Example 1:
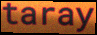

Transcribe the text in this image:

taray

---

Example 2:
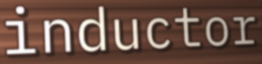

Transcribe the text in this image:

inductor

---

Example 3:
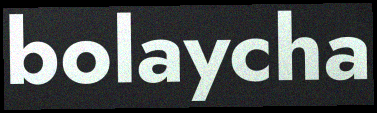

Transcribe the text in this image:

bolaycha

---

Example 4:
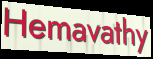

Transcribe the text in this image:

Hemavathy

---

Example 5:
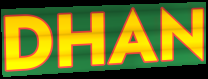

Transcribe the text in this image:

DHAN